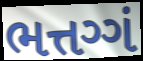
ભત્તગ્ગં